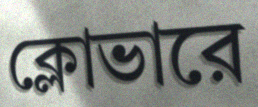
ক্লোভারে